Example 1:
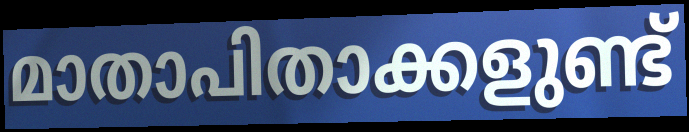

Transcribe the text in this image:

മാതാപിതാക്കളുണ്ട്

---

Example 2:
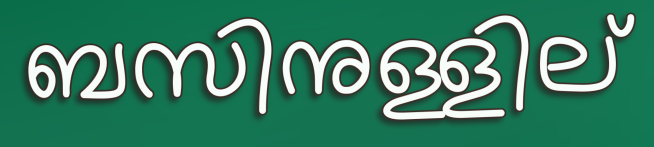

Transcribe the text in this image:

ബസിനുള്ളില്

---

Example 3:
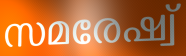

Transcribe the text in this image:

സമരേഷ്വ്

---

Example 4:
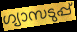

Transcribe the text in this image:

ഗ്യാസടുപ്പ്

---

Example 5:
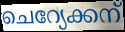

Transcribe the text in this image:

ചെറ്യേക്കന്